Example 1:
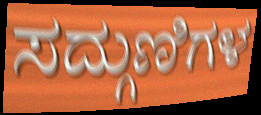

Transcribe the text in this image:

ಸದ್ಗುಣಿಗಳ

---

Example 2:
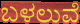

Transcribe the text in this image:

ಬಳಲುವೆ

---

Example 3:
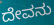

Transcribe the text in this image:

ದೇವನು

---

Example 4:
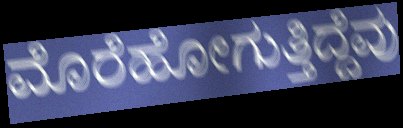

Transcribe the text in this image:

ಮೊರೆಹೋಗುತ್ತಿದ್ದೆವು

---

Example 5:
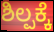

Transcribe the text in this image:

ಶಿಲ್ಪಕ್ಕೆ